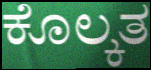
ಕೊಲ್ಕತ